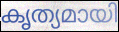
കൃത്യമായി